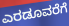
ಎರಡೂವರೆಗೆ